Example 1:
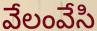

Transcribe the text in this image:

వేలంవేసి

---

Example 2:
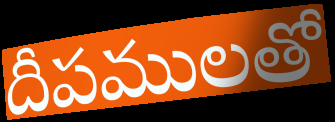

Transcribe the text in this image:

దీపములతో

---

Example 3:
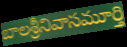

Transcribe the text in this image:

బాలశ్రీనివాసమూర్తి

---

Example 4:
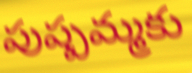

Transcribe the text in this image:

పుష్పమ్మకు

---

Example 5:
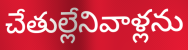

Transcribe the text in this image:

చేతుల్లేనివాళ్లను